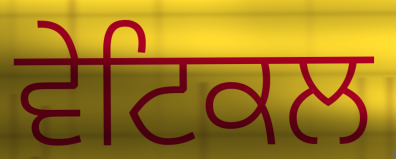
ਵੇਟਿਕਲ